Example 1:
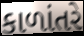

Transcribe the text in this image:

કાળાંતરે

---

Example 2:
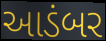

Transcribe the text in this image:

આડંબર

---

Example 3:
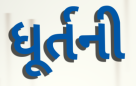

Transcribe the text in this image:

ધૂર્તની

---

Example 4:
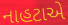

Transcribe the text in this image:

નાહટાએ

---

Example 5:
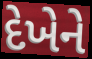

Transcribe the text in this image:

દેખેને